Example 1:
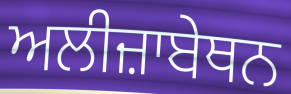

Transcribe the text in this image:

ਅਲੀਜ਼ਾਬੇਥਨ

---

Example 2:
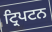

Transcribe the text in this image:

ਟ੍ਰਿਪਟਨ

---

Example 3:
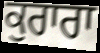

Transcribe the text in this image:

ਕੁਰਾਰਾ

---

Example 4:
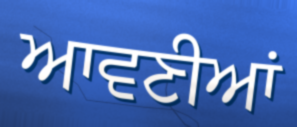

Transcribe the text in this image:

ਆਵਣੀਆਂ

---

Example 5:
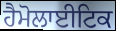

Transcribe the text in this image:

ਹੈਮੋਲਾਈਟਿਕ